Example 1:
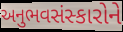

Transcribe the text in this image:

અનુભવસંસ્કારોને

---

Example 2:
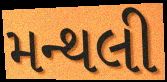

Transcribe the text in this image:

મન્થલી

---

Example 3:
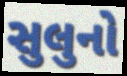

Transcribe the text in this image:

સુલુનો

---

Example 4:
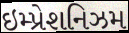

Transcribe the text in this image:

ઇમ્પ્રેશનિઝમ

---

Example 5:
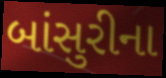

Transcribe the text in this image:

બાંસુરીના